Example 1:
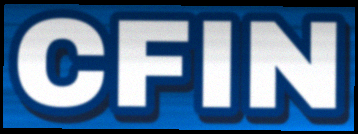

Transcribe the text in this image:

CFIN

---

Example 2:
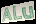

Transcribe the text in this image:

ALu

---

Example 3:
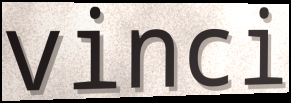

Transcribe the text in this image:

vinci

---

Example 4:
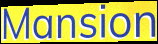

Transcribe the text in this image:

Mansion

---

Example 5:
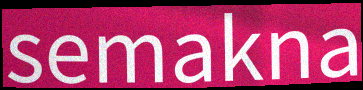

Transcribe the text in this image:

semakna